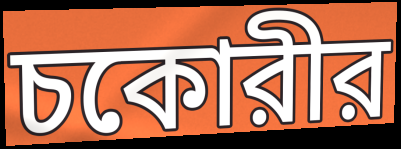
চকোরীর